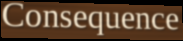
Consequence